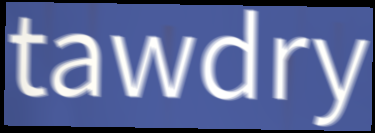
tawdry